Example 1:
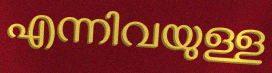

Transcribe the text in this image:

എന്നിവയുള്ള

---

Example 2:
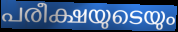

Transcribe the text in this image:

പരീക്ഷയുടെയും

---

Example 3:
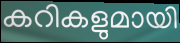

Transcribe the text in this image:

കറികളുമായി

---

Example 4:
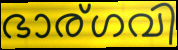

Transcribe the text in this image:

ഭാര്ഗവി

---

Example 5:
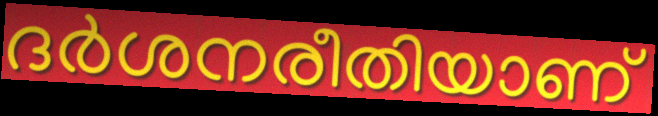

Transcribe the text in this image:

ദർശനരീതിയാണ്